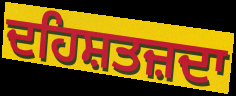
ਦਹਿਸ਼ਤਜ਼ਦਾ